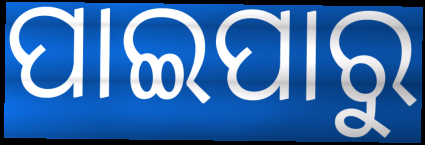
ପାଇପାରୁ